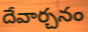
దేవార్చనం